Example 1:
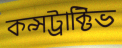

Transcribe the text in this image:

কন্সট্রাক্টিভ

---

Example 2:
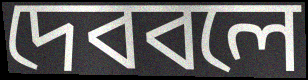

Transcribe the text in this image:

দেববলে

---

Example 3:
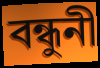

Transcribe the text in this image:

বন্ধুনী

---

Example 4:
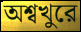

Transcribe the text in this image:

অশ্বখুরে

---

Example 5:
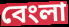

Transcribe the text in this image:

বেংলা